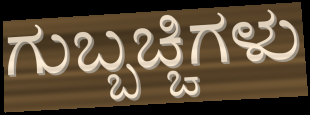
ಗುಬ್ಬಚ್ಚಿಗಳು